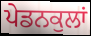
ਪੇਡਨਕੁਲਾਂ